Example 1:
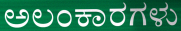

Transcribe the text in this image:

ಅಲಂಕಾರಗಳು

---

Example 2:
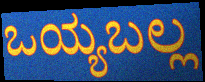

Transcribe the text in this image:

ಒಯ್ಯಬಲ್ಲ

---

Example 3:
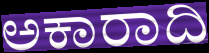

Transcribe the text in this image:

ಅಕಾರಾದಿ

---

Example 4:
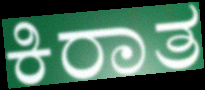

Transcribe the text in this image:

ಕಿರಾತ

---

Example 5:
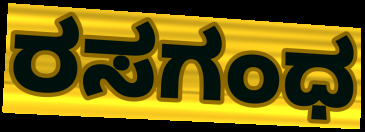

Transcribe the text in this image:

ರಸಗಂಧ